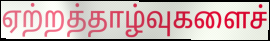
ஏற்றத்தாழ்வுகளைச்